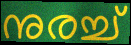
നുരച്ച്